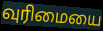
வுரிமையை